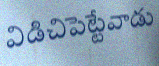
విడిచిపెట్టేవాడు